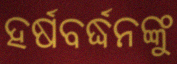
ହର୍ଷବର୍ଦ୍ଧନଙ୍କୁ